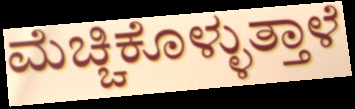
ಮೆಚ್ಚಿಕೊಳ್ಳುತ್ತಾಳೆ